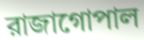
রাজাগোপাল